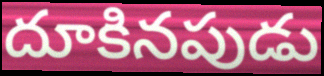
దూకినపుడు